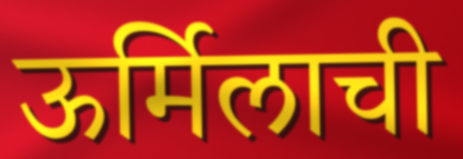
ऊर्मिलाची